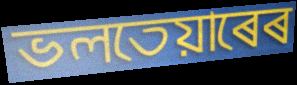
ভলতেয়াৰেৰ